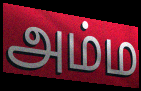
அம்ம